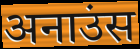
अनाउंस